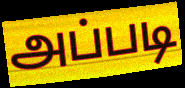
அப்படி